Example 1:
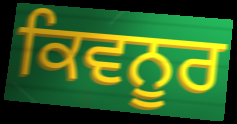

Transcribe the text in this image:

ਕਿਵਨੂਰ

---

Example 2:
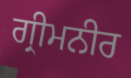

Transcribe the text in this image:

ਗ੍ਰੀਮਨੀਰ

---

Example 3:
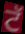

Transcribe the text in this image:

ਟੱ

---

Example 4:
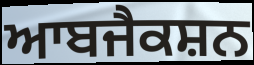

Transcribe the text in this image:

ਆਬਜੈਕਸ਼ਨ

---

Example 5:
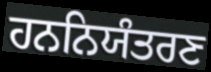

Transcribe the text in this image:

ਹਨਨਿਯੰਤਰਣ